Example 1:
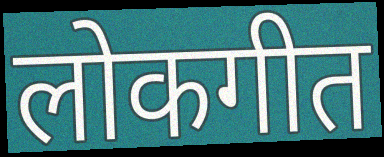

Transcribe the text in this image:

लोकगीत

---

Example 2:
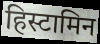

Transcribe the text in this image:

हिस्टामिन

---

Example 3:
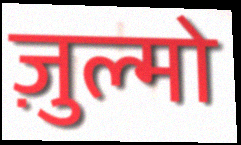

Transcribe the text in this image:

ज़ुल्मो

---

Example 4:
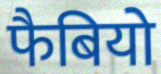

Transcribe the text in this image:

फैबियो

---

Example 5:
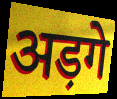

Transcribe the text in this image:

अड़गे